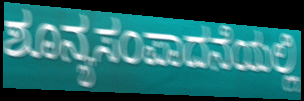
ಶೂನ್ಯಸಂಪಾದನೆಯಲ್ಲಿ